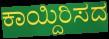
ಕಾಯ್ದಿರಿಸದ